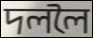
দললৈ